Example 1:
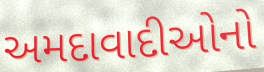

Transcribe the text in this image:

અમદાવાદીઓનો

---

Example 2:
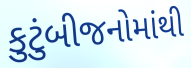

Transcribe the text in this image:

કુટુંબીજનોમાંથી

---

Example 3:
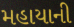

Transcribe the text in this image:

મહાયાની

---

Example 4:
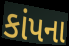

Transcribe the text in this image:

કાંપના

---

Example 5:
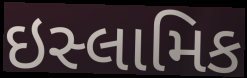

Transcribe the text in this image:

ઇસ્લામિક